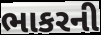
ભાકરની